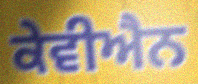
ਕੇਵੀਐਨ